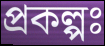
প্ৰকল্পঃ